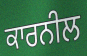
ਕਾਰਨੀਲ